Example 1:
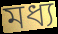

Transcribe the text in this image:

মধ্য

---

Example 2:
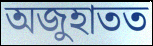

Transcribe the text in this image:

অজুহাতত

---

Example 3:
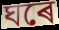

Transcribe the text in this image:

ঘৰে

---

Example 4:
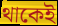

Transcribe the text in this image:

থাকেই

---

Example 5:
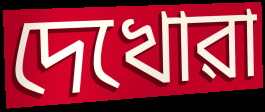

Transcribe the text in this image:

দেখোৱা